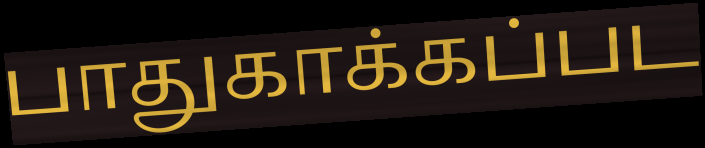
பாதுகாக்கப்பட